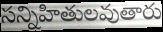
సన్నిహితులవుతారు